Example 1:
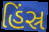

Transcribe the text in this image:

હિંસ્ર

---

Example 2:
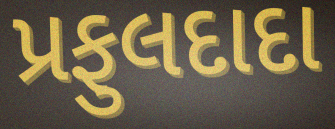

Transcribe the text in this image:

પ્રફુલદાદા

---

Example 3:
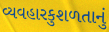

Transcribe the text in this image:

વ્યવહારકુશળતાનું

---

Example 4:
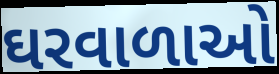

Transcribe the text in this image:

ઘરવાળાઓ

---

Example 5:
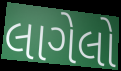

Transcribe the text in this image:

લાગેલો